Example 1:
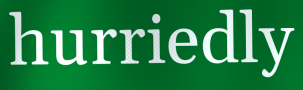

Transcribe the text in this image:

hurriedly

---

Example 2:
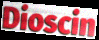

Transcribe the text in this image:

Dioscin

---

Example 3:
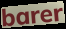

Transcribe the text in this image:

barer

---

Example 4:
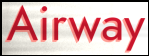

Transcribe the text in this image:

Airway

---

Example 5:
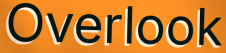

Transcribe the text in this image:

Overlook